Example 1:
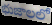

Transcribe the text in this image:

భుజాలలో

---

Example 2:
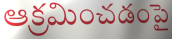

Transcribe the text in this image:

ఆక్రమించడంపై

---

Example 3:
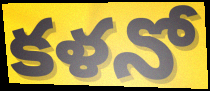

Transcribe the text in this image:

కళనో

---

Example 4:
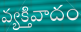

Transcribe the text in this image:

వ్యక్తివాదం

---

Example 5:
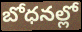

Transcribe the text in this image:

బోధనల్లో